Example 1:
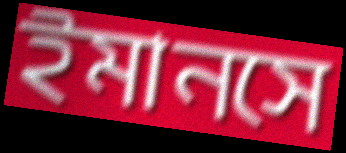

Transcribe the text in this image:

ইমানসে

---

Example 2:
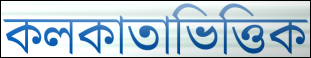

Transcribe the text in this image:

কলকাতাভিত্তিক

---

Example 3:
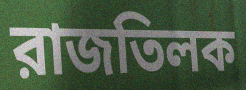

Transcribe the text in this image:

রাজতিলক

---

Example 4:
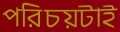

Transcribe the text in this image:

পরিচয়টাই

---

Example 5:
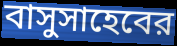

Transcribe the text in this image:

বাসুসাহেবের